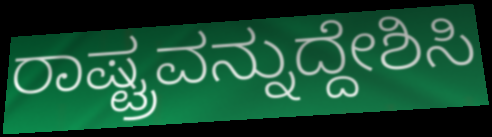
ರಾಷ್ಟ್ರವನ್ನುದ್ದೇಶಿಸಿ